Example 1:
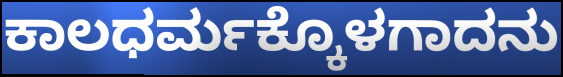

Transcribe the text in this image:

ಕಾಲಧರ್ಮಕ್ಕೊಳಗಾದನು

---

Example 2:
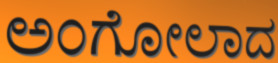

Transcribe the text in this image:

ಅಂಗೋಲಾದ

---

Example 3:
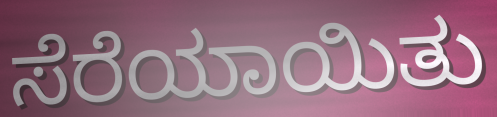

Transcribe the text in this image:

ಸೆರೆಯಾಯಿತು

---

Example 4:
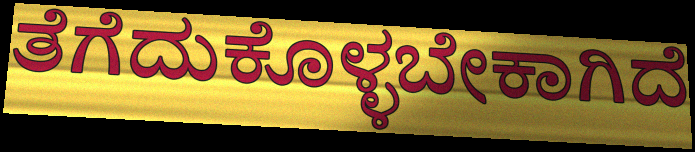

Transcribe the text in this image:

ತೆಗೆದುಕೊಳ್ಳಬೇಕಾಗಿದೆ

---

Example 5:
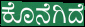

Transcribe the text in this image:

ಕೊನೆಗಿದೆ